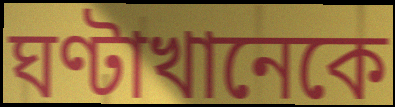
ঘণ্টাখানেকে